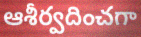
ఆశీర్వదించగా